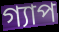
গ্যাপ